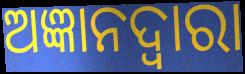
ଅଜ୍ଞାନଦ୍ଵାରା